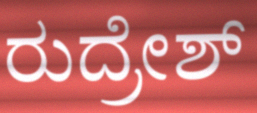
ರುದ್ರೇಶ್